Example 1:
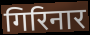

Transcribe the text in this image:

गिरिनार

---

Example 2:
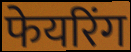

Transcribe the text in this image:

फेयरिंग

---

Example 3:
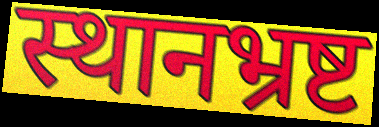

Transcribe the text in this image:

स्थानभ्रष्ट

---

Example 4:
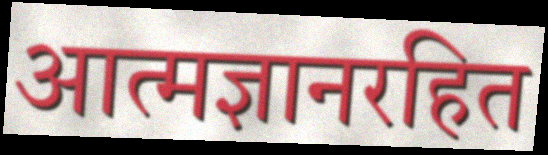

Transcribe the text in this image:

आत्मज्ञानरहित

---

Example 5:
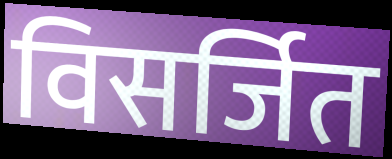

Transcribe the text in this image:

विसर्जित